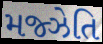
મજ્ઝેતિ